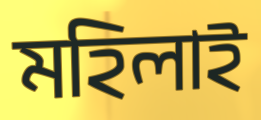
মহিলাই